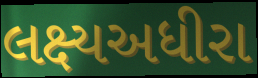
લક્ષ્યઅધીરા